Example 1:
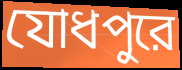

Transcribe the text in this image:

যোধপুরে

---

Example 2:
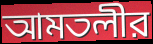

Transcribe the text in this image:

আমতলীর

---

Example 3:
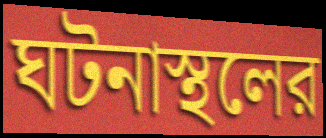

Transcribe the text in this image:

ঘটনাস্থলের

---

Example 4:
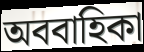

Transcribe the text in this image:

অববাহিকা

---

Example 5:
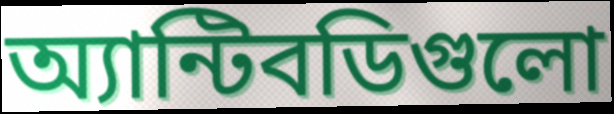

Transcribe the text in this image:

অ্যান্টিবডিগুলো